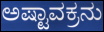
ಅಷ್ಟಾವಕ್ರನು